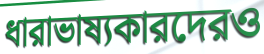
ধারাভাষ্যকারদেরও